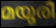
മയൂരീ